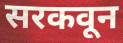
सरकवून